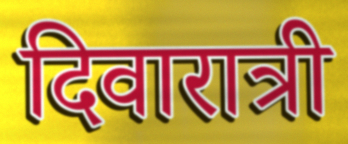
दिवारात्री